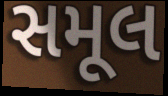
સમૂલ